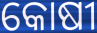
କୋଷୀ